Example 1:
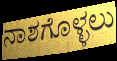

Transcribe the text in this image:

ನಾಶಗೊಳ್ಳಲು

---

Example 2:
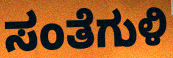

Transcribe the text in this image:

ಸಂತೆಗುಳಿ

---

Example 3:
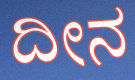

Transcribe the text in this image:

ದೀನ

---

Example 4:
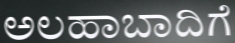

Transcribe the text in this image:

ಅಲಹಾಬಾದಿಗೆ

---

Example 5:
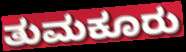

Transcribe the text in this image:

ತುಮಕೂರು